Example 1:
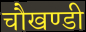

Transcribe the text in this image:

चौखण्डी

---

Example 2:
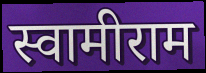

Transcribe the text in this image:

स्वामीराम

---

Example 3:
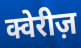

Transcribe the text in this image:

क्वेरीज़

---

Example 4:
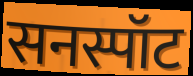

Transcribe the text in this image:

सनस्पॉट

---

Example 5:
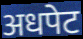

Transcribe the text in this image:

अधपेट